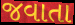
જવાતા